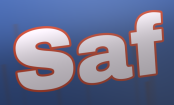
Saf